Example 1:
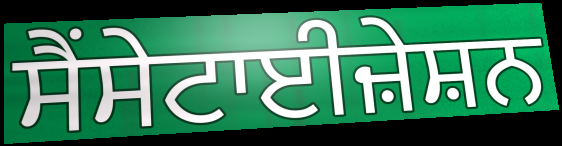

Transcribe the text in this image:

ਸੈਂਸੇਟਾਈਜ਼ੇਸ਼ਨ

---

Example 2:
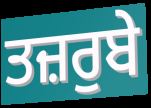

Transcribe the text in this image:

ਤਜ਼ਰੁਬੇ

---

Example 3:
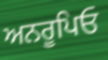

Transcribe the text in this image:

ਅਨਰੂਪਿਓ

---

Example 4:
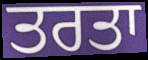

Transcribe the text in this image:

ਤਰਤਾ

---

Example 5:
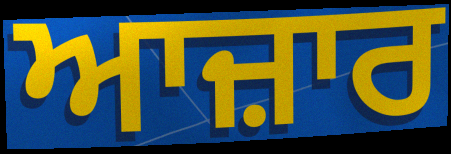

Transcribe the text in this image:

ਆਜ਼ਾਰ